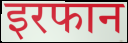
इरफान